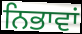
ਨਿਭਾਵਾਂ